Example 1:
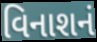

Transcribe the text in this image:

વિનાશનં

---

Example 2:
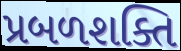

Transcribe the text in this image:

પ્રબળશક્તિ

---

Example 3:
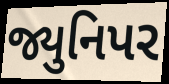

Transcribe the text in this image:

જ્યુનિપર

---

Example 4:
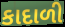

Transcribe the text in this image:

કાદાળી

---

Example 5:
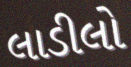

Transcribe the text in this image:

લાડીલો